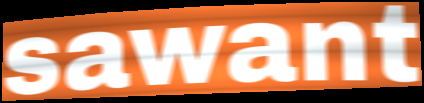
sawant